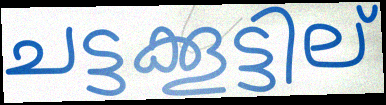
ചട്ടക്കൂട്ടില്